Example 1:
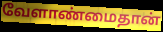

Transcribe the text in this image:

வேளாண்மைதான்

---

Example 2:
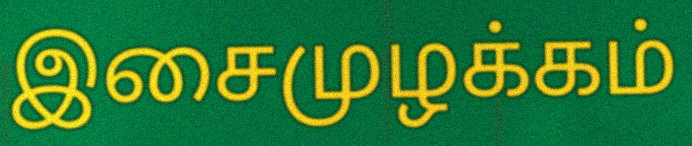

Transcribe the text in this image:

இசைமுழக்கம்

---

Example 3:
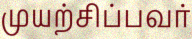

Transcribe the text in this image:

முயற்சிப்பவர்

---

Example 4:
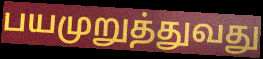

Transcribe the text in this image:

பயமுறுத்துவது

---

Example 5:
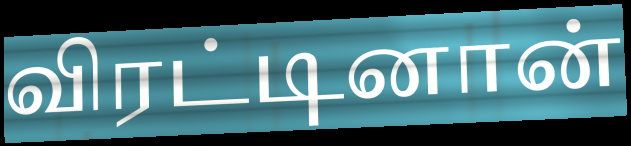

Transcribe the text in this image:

விரட்டினான்